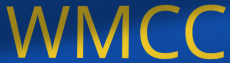
WMCC